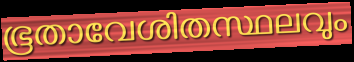
ഭൂതാവേശിതസ്ഥലവും